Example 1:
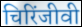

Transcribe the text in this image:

चिरिंजीवी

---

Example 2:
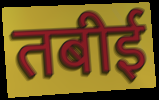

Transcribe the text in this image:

तबीई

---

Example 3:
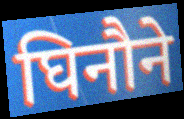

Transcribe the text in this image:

घिनौने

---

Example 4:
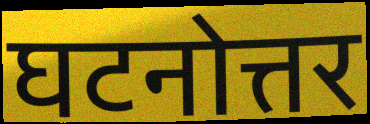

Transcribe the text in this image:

घटनोत्तर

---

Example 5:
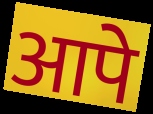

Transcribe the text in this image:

आपे